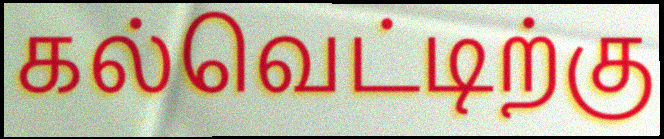
கல்வெட்டிற்கு